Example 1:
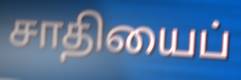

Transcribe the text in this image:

சாதியைப்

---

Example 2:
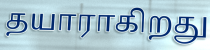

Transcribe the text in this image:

தயாராகிறது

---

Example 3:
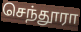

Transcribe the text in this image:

செந்தூரா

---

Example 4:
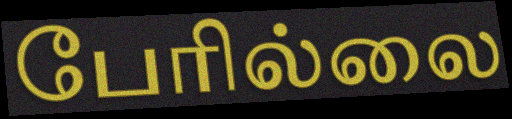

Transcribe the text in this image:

பேரில்லை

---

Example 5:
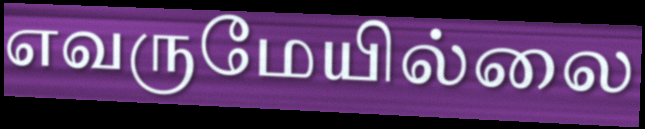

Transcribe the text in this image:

எவருமேயில்லை